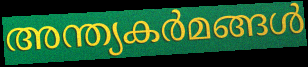
അന്ത്യകർമങ്ങൾ